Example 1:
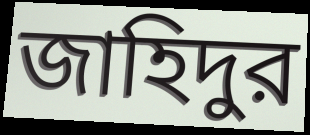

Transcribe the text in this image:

জাহিদুর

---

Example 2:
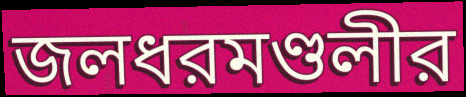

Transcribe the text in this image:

জলধরমণ্ডলীর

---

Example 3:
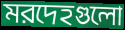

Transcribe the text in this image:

মরদেহগুলো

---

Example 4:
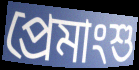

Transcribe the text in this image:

প্রেমাংশু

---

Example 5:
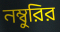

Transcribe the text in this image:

নম্বুরির